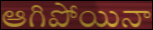
ఆగిపోయినా